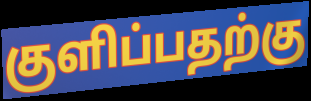
குளிப்பதற்கு